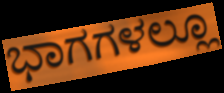
ಭಾಗಗಳಲ್ಲೂ